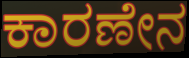
ಕಾರಣೇನ